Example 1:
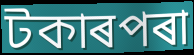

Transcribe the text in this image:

টকাৰপৰা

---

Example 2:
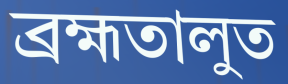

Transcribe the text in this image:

ব্ৰহ্মতালুত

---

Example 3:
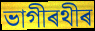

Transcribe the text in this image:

ভাগীৰথীৰ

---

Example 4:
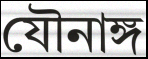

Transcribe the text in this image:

যৌনাঙ্গ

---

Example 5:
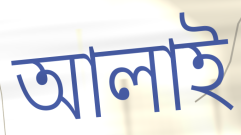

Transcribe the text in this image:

আলাই